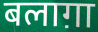
बलाग़ा